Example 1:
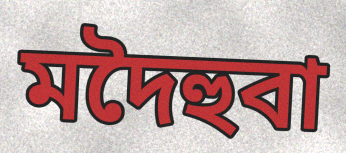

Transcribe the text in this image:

মদৈহুবা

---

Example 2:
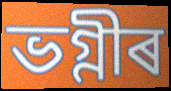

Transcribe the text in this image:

ভগ্নীৰ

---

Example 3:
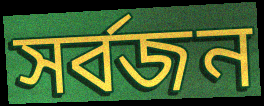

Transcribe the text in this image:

সৰ্বজন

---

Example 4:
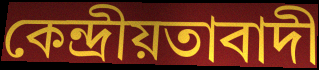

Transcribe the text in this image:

কেন্দ্ৰীয়তাবাদী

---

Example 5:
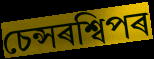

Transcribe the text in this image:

চেন্সৰশ্বিপৰ